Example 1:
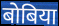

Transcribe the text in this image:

बोबिया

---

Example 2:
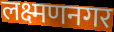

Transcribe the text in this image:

लक्ष्मणनगर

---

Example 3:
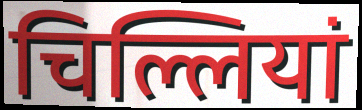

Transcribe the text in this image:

चिल्लियां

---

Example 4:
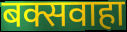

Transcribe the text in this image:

बक्सवाहा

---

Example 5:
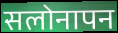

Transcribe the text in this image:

सलोनापन